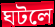
ঘটলে